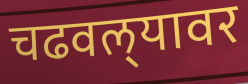
चढवल्यावर